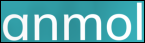
anmol